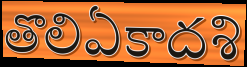
తొలిఏకాదశి